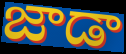
జాడా